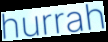
hurrah